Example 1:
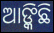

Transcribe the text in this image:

ଆଙ୍କିଛି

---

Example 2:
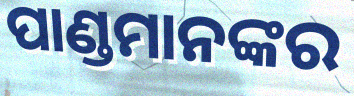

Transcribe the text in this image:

ପାଣ୍ଡମାନଙ୍କର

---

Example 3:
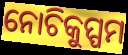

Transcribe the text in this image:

ନୋଚିକୁପ୍ପମ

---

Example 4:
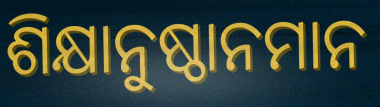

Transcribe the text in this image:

ଶିକ୍ଷାନୁଷ୍ଠାନମାନ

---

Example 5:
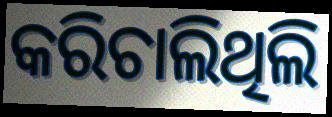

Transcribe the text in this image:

କରିଚାଲିଥିଲି